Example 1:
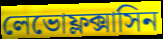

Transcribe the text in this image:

লেভোফ্লক্সাসিন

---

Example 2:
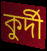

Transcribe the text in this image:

কুর্দী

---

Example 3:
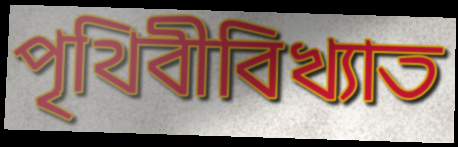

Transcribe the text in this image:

পৃথিবীবিখ্যাত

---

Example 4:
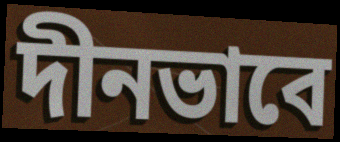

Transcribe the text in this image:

দীনভাবে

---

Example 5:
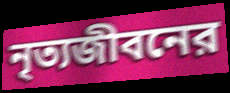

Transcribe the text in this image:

নৃত্যজীবনের